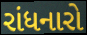
રાંધનારો